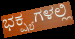
ಭಕ್ಷ್ಯಗಳಲ್ಲಿ